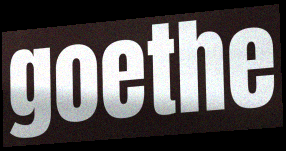
goethe